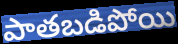
పాతబడిపోయి